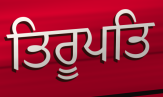
ਤਿਰੂਪਤਿ